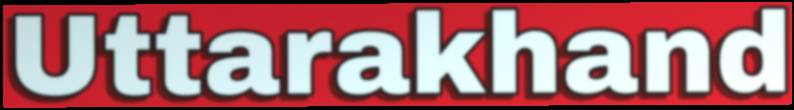
Uttarakhand